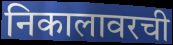
निकालावरची